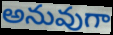
అనువుగా